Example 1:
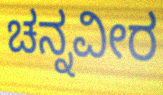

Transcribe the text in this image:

ಚನ್ನವೀರ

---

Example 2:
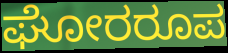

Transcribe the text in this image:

ಘೋರರೂಪ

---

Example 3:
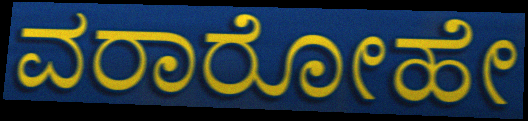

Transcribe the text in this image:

ವರಾರೋಹೇ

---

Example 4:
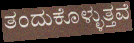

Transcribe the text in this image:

ತಂದುಕೊಳ್ಳುತ್ತವೆ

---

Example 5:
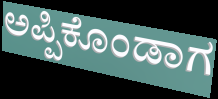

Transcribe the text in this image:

ಅಪ್ಪಿಕೊಂಡಾಗ